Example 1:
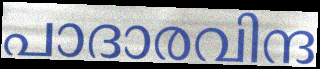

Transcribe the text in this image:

പാദാരവിന്ദ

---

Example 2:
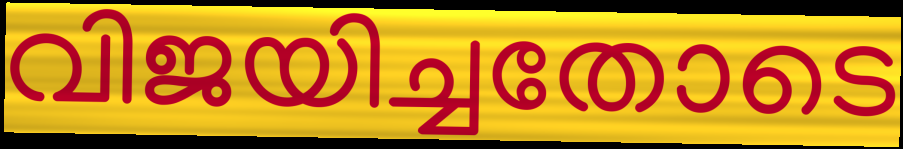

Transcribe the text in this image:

വിജയിച്ചതോടെ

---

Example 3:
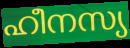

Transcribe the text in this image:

ഹീനസ്യ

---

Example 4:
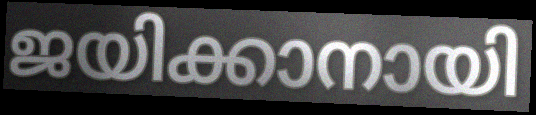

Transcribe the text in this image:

ജയിക്കാനായി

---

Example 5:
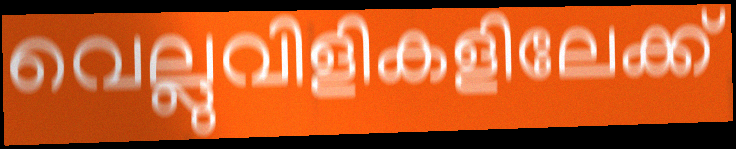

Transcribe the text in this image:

വെല്ലുവിളികളിലേക്ക്